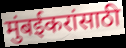
मुंबईकरांसाठी